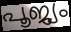
പൂജ്യം